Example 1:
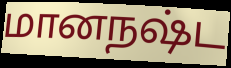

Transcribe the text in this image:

மானநஷ்ட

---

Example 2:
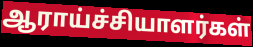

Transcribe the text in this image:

ஆராய்ச்சியாளர்கள்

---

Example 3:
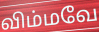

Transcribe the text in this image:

விம்மவே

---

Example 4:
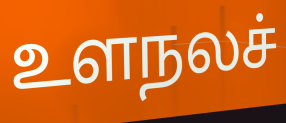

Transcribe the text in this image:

உளநலச்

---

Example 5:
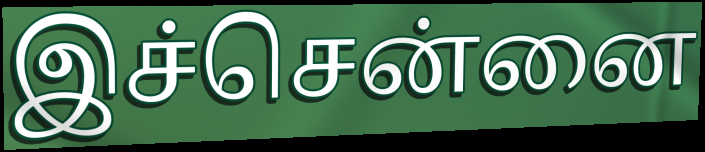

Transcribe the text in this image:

இச்சென்னை